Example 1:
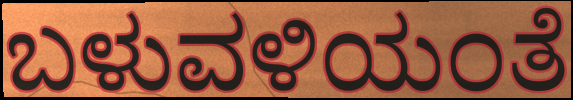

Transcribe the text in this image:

ಬಳುವಳಿಯಂತೆ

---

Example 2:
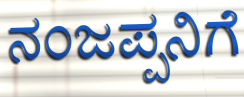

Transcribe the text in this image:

ನಂಜಪ್ಪನಿಗೆ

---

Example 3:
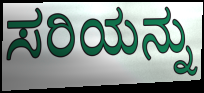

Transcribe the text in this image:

ಸರಿಯನ್ನು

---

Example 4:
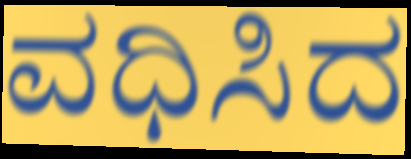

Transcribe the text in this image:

ವಧಿಸಿದ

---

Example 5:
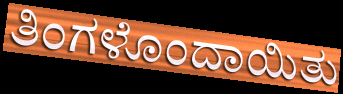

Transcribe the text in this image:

ತಿಂಗಳೊಂದಾಯಿತು